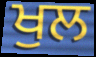
ਖੁਲ